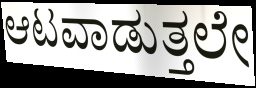
ಆಟವಾಡುತ್ತಲೇ